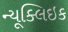
ન્યૂક્લિઇક